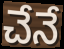
చేనే